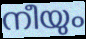
നീയും